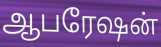
ஆபரேஷன்